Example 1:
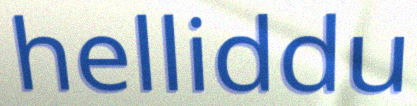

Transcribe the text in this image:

helliddu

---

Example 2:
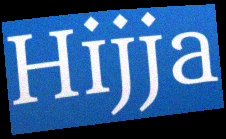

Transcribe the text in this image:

Hijja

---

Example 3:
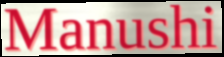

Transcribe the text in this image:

Manushi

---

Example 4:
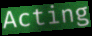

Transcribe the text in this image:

Acting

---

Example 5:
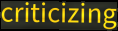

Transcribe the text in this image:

criticizing